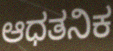
ಆಧತನಿಕ